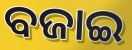
ବଜାଇ